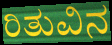
ರಿತುವಿನ